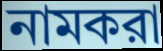
নামকরা